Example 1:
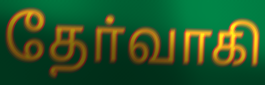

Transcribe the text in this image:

தேர்வாகி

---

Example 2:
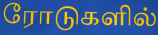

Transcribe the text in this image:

ரோடுகளில்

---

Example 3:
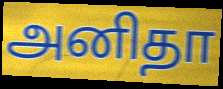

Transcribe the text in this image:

அனிதா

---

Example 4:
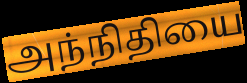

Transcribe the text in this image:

அந்நிதியை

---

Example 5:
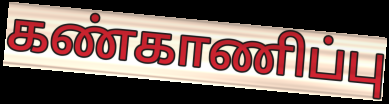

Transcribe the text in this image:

கண்காணிப்பு